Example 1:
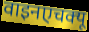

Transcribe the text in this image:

वाइनएचक्यू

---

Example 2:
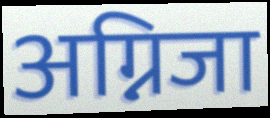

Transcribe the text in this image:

अग्निजा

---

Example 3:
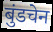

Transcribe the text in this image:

बुंडचेन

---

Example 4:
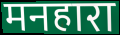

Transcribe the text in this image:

मनहारा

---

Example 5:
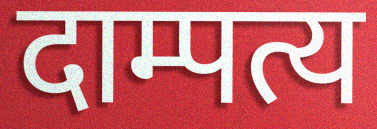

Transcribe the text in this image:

दाम्पत्य